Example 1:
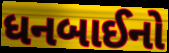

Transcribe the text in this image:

ધનબાઈનો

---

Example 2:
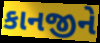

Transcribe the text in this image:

કાનજીને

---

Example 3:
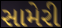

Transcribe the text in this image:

સામેરી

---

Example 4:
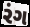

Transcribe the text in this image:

રંગ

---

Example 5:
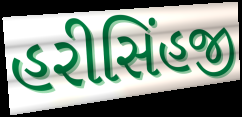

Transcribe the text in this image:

હરીસિંહજી